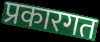
प्रकारगत